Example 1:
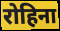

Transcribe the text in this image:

रोहिना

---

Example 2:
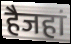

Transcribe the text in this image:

हैजहां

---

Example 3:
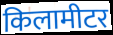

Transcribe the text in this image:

किलामीटर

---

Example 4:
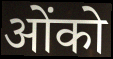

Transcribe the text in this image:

ओंको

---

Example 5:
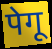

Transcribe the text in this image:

पेगू